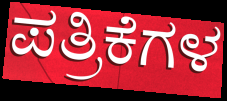
ಪತ್ರಿಕೆಗಳ